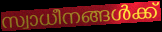
സ്വാധീനങ്ങൾക്ക്